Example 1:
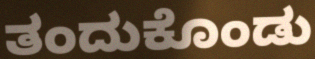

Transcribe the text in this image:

ತಂದುಕೊಂಡು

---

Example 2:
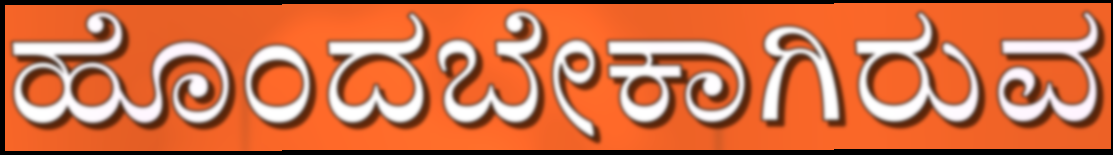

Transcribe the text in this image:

ಹೊಂದಬೇಕಾಗಿರುವ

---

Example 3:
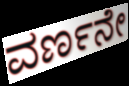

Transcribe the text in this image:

ವರ್ಣನೇ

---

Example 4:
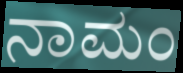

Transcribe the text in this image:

ನಾಮಂ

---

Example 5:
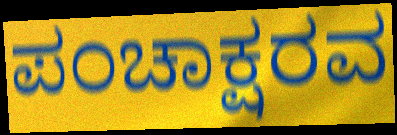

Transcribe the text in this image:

ಪಂಚಾಕ್ಷರವ